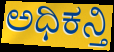
ಅಧಿಕನ್ತಿ